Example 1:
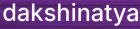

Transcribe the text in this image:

dakshinatya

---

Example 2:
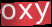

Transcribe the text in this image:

oxy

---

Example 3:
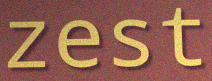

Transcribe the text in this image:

zest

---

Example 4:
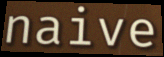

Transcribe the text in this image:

naive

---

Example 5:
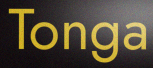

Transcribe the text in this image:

Tonga